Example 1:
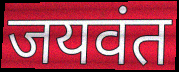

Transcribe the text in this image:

जयवंत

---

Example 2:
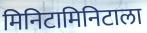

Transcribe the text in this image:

मिनिटामिनिटाला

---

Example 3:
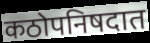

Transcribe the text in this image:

कठोपनिषदात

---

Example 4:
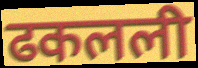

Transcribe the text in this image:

ढकलली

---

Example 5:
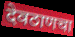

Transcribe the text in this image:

देवठाणचा